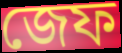
জেফ